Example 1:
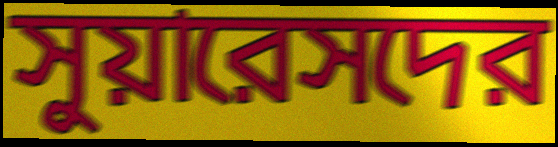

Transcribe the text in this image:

সুয়ারেসদের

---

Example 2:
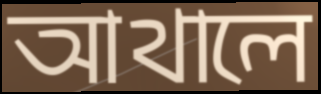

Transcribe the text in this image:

আথালে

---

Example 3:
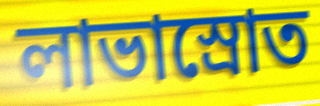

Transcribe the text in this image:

লাভাস্রোত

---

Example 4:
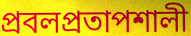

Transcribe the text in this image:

প্রবলপ্রতাপশালী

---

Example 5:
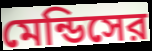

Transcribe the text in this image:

মেন্ডিসের